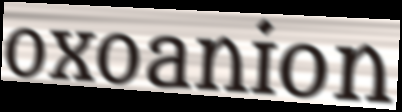
oxoanion